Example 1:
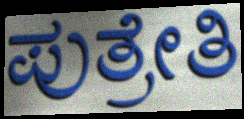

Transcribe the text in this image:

ಪುತ್ರೇತಿ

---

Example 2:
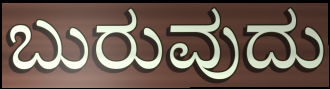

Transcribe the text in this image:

ಬುರುವುದು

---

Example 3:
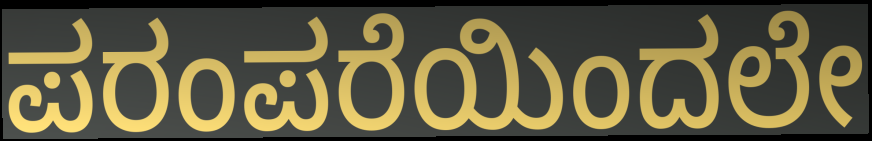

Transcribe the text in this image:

ಪರಂಪರೆಯಿಂದಲೇ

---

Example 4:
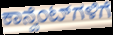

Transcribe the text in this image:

ಕಾನ್ವೆಂಟ್‌ಗಳಿಗೆ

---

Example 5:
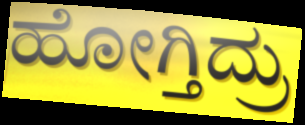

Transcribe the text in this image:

ಹೋಗ್ತಿದ್ರು